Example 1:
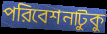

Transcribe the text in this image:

পরিবেশনাটুকু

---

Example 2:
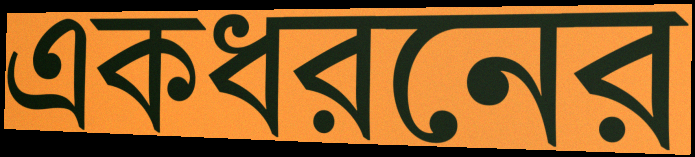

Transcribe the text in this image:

একধরনের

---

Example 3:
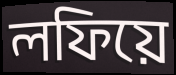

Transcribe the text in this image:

লফিয়ে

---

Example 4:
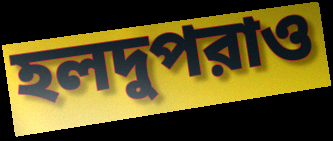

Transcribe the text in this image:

হলদুপরাও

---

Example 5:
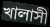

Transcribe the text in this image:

খালাসী